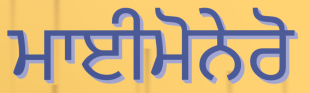
ਮਾਈਮੋਨੇਰੋ